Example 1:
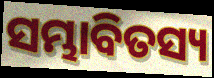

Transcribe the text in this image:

ସମ୍ଭାବିତସ୍ୟ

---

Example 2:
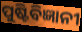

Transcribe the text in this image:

ପୁଷ୍ଟିବିଜ୍ଞାନୀ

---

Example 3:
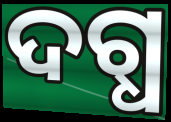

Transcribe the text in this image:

ଦଗ୍ଧ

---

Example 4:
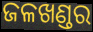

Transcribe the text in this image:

ଜଳଖଣ୍ଡର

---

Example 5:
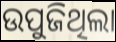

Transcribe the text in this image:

ଉପୁଜିଥିଲା